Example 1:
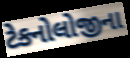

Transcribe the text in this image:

ટેકનોલોજીના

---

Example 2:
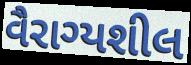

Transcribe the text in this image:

વૈરાગ્યશીલ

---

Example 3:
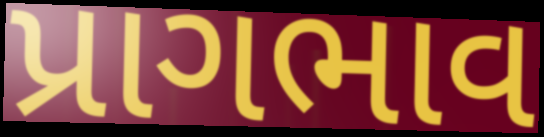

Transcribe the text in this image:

પ્રાગભાવ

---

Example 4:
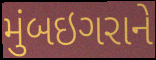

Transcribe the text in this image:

મુંબઇગરાને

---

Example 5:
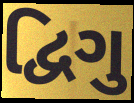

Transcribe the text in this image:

દ્વિગુ